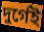
দুর্গেই